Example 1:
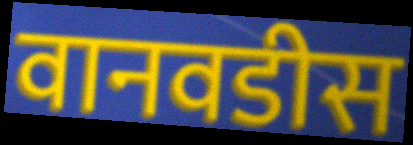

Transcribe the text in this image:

वानवडीस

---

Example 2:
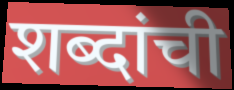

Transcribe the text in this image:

शब्दांची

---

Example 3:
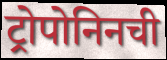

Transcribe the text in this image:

ट्रोपोनिनची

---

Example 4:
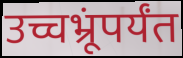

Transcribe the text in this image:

उच्चभ्रूंपर्यंत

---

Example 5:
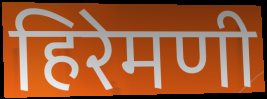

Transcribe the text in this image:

हिरेमणी